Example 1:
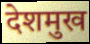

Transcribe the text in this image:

देशमुख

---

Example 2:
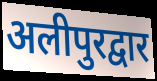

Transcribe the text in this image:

अलीपुरद्वार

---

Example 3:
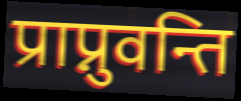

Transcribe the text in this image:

प्राप्नुवन्ति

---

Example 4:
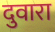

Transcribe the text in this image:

दुवारा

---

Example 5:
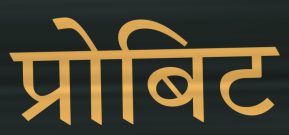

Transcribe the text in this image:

प्रोबिट